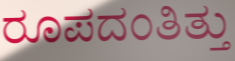
ರೂಪದಂತಿತ್ತು